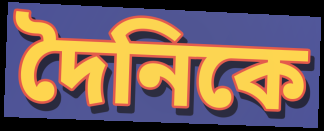
দৈনিকে